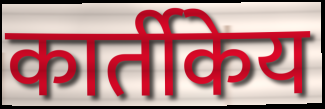
कार्तीकेय